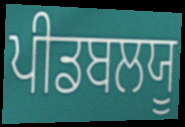
ਪੀਡਬਲਯੂ